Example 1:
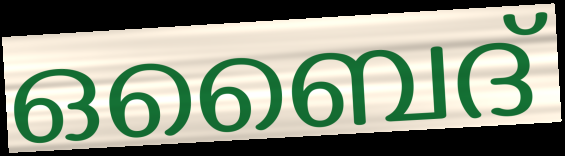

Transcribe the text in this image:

ഒബൈദ്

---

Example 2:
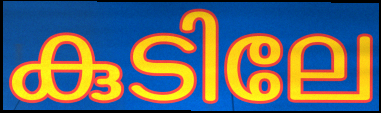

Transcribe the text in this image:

കുടിലേ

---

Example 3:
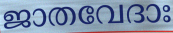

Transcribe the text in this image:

ജാതവേദാഃ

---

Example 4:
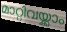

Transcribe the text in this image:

മാറ്റിവയ്ക്കാം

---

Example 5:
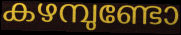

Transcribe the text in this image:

കഴമ്പുണ്ടോ